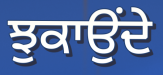
ਝੁਕਾਉੰਦੇ